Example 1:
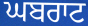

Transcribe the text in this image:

ਘਬਰਾਟ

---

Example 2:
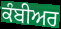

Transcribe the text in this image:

ਕੰਬੀਅਰ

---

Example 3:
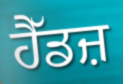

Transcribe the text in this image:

ਹੈੱਡਜ਼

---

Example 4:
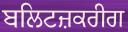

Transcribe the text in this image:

ਬਲਿਟਜ਼ਕਰੀਗ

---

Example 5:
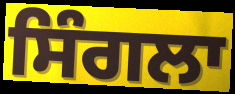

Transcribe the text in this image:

ਸਿੰਗਲਾ